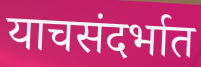
याचसंदर्भात